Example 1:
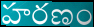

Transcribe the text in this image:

హరణం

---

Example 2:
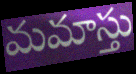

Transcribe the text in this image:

మమాస్తు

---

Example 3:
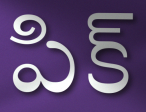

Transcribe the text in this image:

పిక్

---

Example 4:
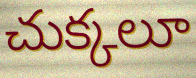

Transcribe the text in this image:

చుక్కలూ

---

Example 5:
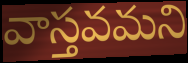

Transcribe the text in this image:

వాస్తవమని